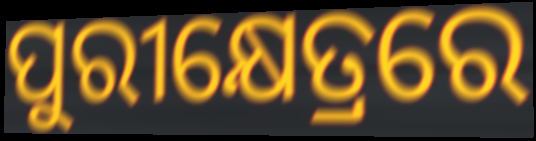
ପୁରୀକ୍ଷେତ୍ରରେ